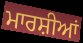
ਮਾਰਸ਼ੀਆਂ